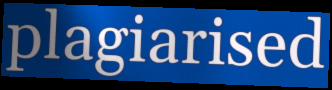
plagiarised